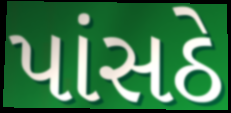
પાંસઠે